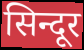
सिन्दूर